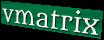
vmatrix